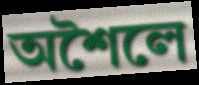
অশৈলে